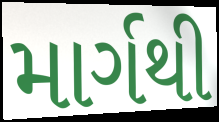
માર્ગથી